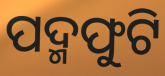
ପଦ୍ମଫୁଟି